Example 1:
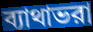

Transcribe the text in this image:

ব্যাথাভরা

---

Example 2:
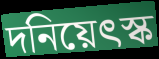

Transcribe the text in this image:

দনিয়েৎস্ক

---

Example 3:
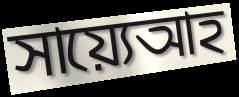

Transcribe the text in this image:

সায়্যেআহ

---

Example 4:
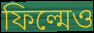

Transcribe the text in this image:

ফিল্মেও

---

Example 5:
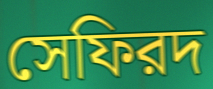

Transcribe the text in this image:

সেফিরদ